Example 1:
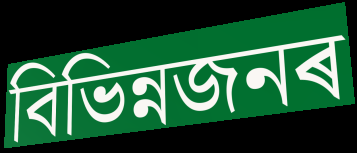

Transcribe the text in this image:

বিভিন্নজনৰ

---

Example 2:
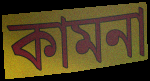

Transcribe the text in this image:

কামনা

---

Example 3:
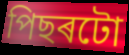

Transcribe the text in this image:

পিছৰটো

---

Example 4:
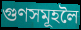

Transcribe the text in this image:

গুণসমূহলৈ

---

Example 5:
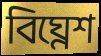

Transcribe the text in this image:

বিঘ্নেশ